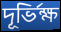
দূর্ভিক্ষ